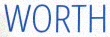
WORTH